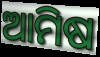
ଆମିଷ